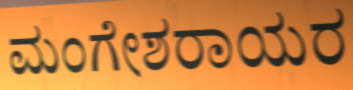
ಮಂಗೇಶರಾಯರ